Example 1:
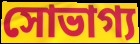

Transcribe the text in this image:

সোভাগ্য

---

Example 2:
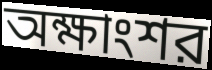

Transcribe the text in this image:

অক্ষাংশর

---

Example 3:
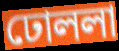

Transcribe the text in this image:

ঢোললা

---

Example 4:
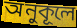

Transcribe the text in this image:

অনুকূলে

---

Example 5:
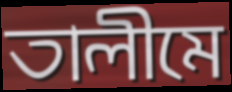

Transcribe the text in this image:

তালীমে